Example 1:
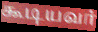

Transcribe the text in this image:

கூடியவர்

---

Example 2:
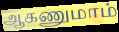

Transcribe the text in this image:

ஆகணுமாம்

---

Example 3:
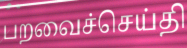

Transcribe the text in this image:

பறவைச்செய்தி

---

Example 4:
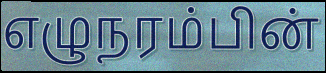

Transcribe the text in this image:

எழுநரம்பின்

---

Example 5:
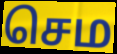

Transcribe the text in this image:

செம